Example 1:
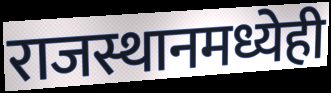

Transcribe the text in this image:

राजस्थानमध्येही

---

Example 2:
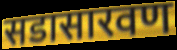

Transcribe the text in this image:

सडासारवण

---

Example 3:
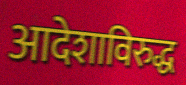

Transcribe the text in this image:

आदेशाविरुद्ध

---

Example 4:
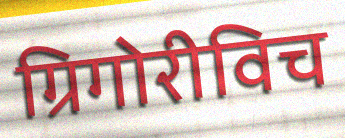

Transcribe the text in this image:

ग्रिगोरीविच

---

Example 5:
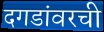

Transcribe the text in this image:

दगडांवरची